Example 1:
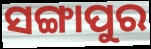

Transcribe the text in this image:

ସଙ୍ଗାପୁର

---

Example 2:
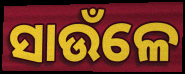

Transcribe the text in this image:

ସାଉଁଳେ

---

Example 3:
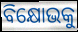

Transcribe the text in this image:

ବିକ୍ଷୋଭକୁ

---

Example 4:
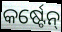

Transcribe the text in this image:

କର୍ଷ୍ଟେନ୍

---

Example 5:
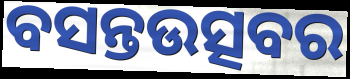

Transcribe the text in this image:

ବସନ୍ତଉତ୍ସବର